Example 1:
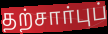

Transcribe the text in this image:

தற்சார்புப்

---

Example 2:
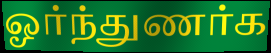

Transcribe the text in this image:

ஓர்ந்துணர்க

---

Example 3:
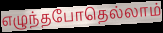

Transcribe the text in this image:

எழுந்தபோதெல்லாம்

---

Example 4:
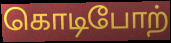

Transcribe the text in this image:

கொடிபோற்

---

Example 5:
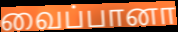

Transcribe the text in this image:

வைப்பானா